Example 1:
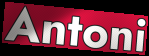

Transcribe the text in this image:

Antoni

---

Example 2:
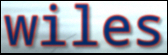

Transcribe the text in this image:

wiles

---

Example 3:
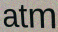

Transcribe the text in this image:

atm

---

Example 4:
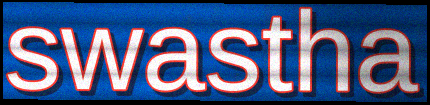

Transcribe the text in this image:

swastha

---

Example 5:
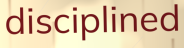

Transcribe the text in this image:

disciplined